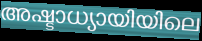
അഷ്ടാധ്യായിയിലെ